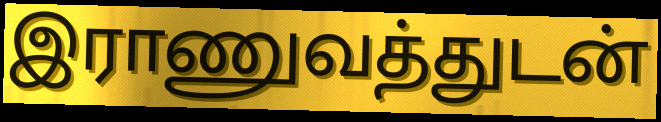
இராணுவத்துடன்